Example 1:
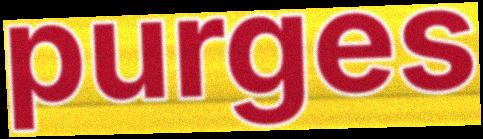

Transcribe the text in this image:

purges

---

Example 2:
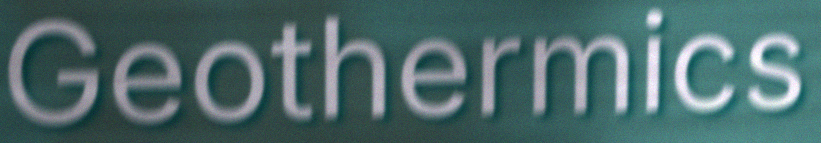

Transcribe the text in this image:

Geothermics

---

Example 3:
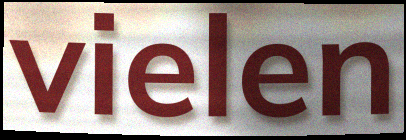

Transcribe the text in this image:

vielen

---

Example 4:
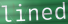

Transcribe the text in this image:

lined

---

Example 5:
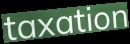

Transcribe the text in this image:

taxation